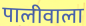
पालीवाला